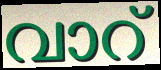
വാറ്